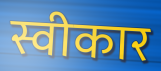
स्वीकार